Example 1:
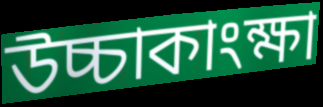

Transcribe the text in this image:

উচ্চাকাংক্ষা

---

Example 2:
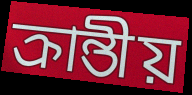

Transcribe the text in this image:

ক্ৰান্তীয়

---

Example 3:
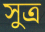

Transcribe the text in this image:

সুত্ৰ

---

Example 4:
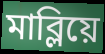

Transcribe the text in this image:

মাব্লিয়ে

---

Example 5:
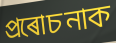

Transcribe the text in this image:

প্ৰৰোচনাক